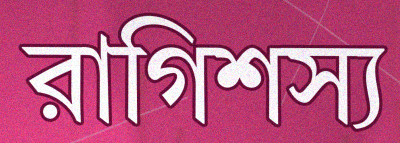
রাগিশস্য